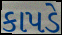
કાપડે